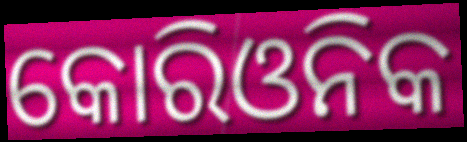
କୋରିଓନିକ